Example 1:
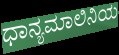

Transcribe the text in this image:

ಧಾನ್ಯಮಾಲಿನಿಯ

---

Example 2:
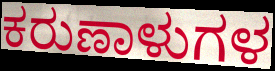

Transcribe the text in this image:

ಕರುಣಾಳುಗಳ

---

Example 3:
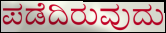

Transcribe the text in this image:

ಪಡೆದಿರುವುದು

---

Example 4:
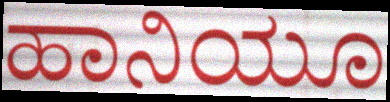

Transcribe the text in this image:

ಹಾನಿಯೂ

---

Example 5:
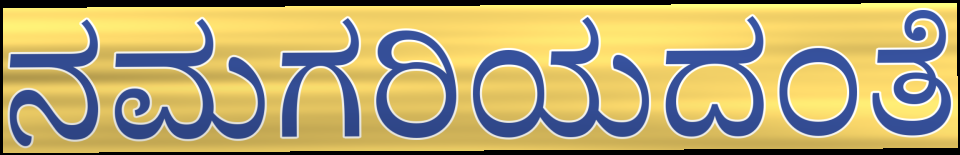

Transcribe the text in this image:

ನಮಗರಿಯದಂತೆ